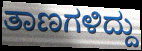
ತಾಣಗಳಿದ್ದು